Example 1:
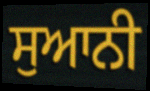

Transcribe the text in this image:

ਸੁਆਨੀ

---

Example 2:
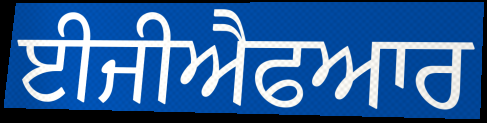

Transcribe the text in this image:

ਈਜੀਐਫਆਰ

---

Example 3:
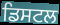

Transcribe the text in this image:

ਡਿਸਟਲ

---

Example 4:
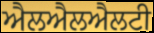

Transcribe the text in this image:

ਐਲਐਲਐਲਟੀ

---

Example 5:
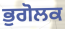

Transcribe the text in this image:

ਭੁਗੋਲਕ